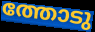
ത്തോടു